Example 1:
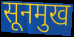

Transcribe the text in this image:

सूनमुख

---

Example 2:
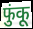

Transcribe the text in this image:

फुंकू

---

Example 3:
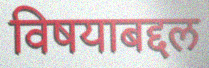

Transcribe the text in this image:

विषयाबद्दल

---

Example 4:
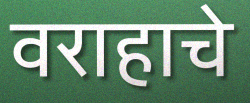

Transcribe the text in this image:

वराहाचे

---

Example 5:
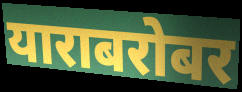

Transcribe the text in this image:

याराबरोबर